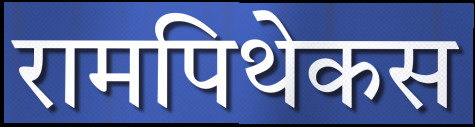
रामपिथेकस